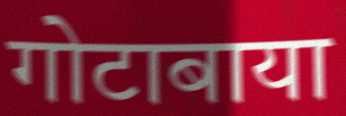
गोटाबाया